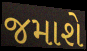
જમાશે